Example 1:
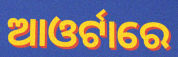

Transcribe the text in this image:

ଆଓର୍ଟାରେ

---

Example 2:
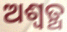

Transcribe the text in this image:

ଅଶ୍ବତ୍ଥ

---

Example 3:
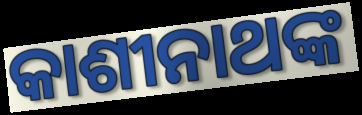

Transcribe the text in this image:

କାଶୀନାଥଙ୍କ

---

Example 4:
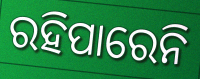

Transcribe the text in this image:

ରହିପାରେନି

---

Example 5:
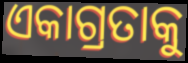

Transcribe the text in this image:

ଏକାଗ୍ରତାକୁ